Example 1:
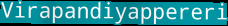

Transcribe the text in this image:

Virapandiyappereri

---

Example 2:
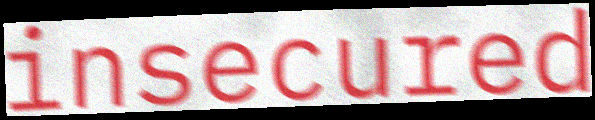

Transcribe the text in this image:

insecured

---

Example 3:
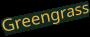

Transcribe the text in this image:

Greengrass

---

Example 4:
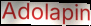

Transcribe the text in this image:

Adolapin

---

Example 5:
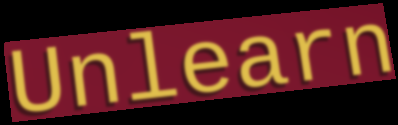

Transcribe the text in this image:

Unlearn